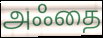
அஃதை